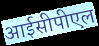
आईसीपीएल